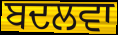
ਬਦਲਵਾ